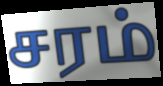
சரம்